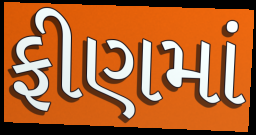
ફીણમાં